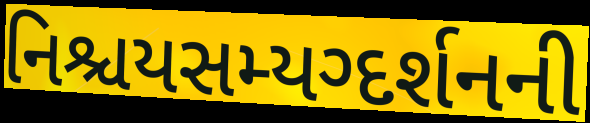
નિશ્ચયસમ્યગ્દર્શનની